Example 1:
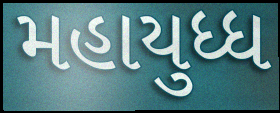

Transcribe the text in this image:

મહાયુધ્ધ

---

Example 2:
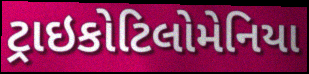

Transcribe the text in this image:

ટ્રાઇકોટિલોમેનિયા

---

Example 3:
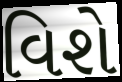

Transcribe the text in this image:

વિશે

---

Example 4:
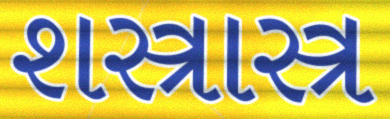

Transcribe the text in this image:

શસ્ત્રાસ્ત્ર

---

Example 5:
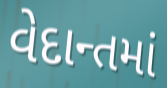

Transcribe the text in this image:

વેદાન્તમાં